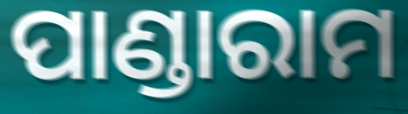
ପାଣ୍ଡାରାମ